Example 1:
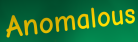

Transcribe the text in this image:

Anomalous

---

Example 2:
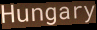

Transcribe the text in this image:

Hungary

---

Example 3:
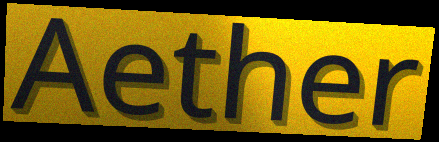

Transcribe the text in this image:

Aether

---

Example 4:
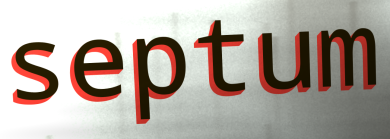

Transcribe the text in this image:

septum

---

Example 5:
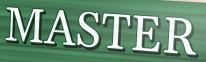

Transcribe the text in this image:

MASTER